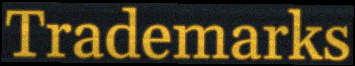
Trademarks